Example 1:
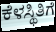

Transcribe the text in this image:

ಕೆಳಸ್ಥಿತಿಗೆ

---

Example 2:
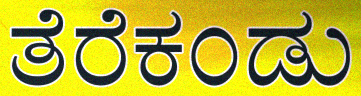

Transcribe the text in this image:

ತೆರೆಕಂಡು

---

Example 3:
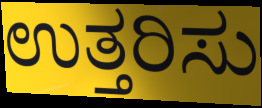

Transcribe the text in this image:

ಉತ್ತರಿಸು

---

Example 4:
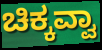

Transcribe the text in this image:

ಚಿಕ್ಕವ್ವಾ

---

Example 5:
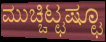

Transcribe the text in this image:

ಮುಚ್ಚಿಟ್ಟಷ್ಟೂ